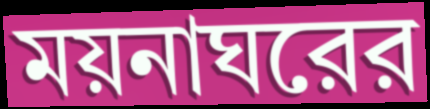
ময়নাঘরের